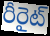
రీరైట్